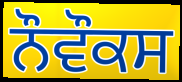
ਨੌਵੌਕਸ